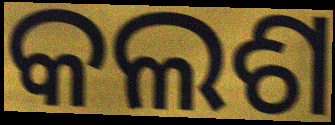
କଲଶ